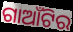
ଗାଆଁଟିର